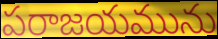
పరాజయమును